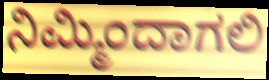
ನಿಮ್ಮಿಂದಾಗಲಿ